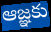
ఆజ్ఞకు